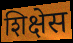
शिक्षेस